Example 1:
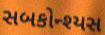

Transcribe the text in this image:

સબકોન્શ્યસ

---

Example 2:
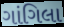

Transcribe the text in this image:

ગાંગિલા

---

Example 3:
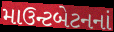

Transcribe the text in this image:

માઉન્ટબેટનનાં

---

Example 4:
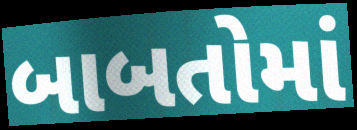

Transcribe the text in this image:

બાબતોમાં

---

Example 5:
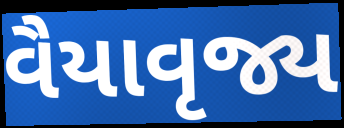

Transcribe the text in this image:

વૈયાવૃજ્ય